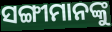
ସଙ୍ଗୀମାନଙ୍କୁ